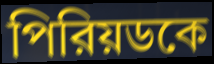
পিরিয়ডকে